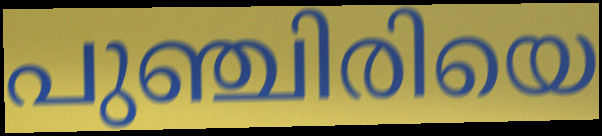
പുഞ്ചിരിയെ